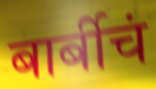
बार्बीचं